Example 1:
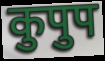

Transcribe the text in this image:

कुपुप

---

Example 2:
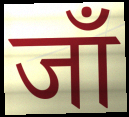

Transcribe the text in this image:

जाँ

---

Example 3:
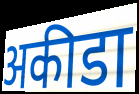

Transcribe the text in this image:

अकीडा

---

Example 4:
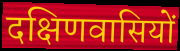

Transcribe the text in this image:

दक्षिणवासियों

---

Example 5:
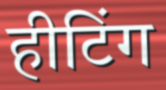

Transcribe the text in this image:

हीटिंग